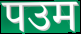
पउम